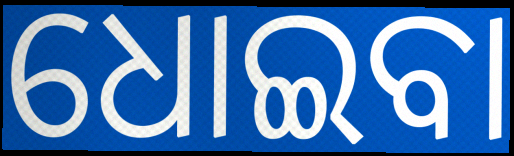
ଧୋଇବା